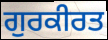
ਗੁਰਕੀਰਤ